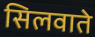
सिलवाते